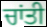
ਚਾਂਤੀ